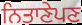
ਨਿਤਾਣੇਪਣ